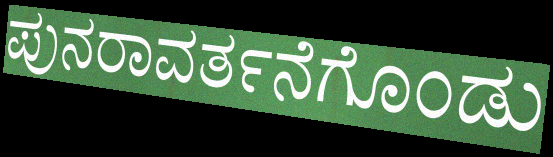
ಪುನರಾವರ್ತನೆಗೊಂಡು